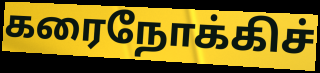
கரைநோக்கிச்